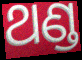
ଥଣ୍ଡ